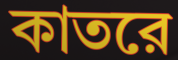
কাতরে